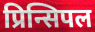
प्रिन्सिपल